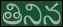
తినిన